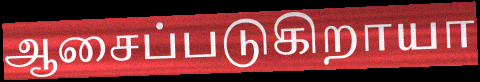
ஆசைப்படுகிறாயா